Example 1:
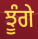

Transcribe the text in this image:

ਝੂੰਗੇ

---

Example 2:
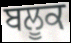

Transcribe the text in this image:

ਬਲੂਕ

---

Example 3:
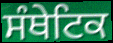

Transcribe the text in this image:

ਸੰਥੇਟਿਕ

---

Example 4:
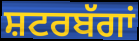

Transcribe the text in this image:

ਸ਼ਟਰਬੱਗਾਂ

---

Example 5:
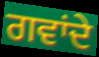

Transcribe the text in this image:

ਗਵਾਂਦੇ